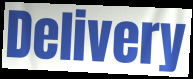
Delivery